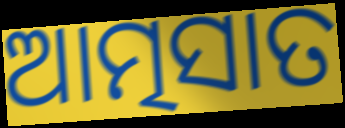
ଆତ୍ମସାତ